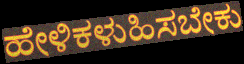
ಹೇಳಿಕಳುಹಿಸಬೇಕು